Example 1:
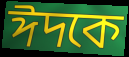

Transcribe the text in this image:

ঈদকে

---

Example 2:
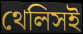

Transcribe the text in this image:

থেলিসই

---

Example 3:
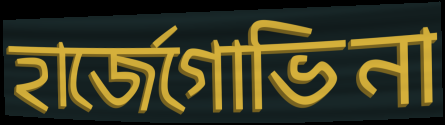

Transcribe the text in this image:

হার্জেগোভিনা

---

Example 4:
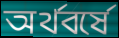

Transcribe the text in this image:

অর্থবর্ষে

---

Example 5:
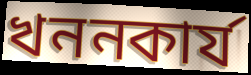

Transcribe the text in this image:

খননকার্য